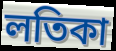
লতিকা